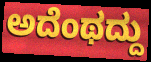
ಅದೆಂಥದ್ದು